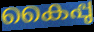
കൈപ്പു